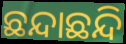
ଛନ୍ଦାଛନ୍ଦି